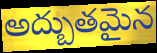
అద్బుతమైన